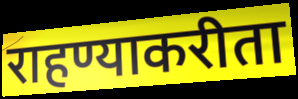
राहण्याकरीता